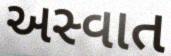
અસ્વાત